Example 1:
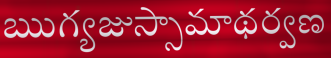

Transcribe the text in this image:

ఋగ్యజుస్సామాథర్వణ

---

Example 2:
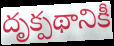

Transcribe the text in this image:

దృక్పథానికీ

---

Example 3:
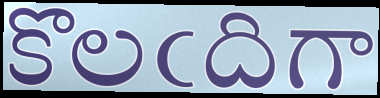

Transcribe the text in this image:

కొలఁదిగా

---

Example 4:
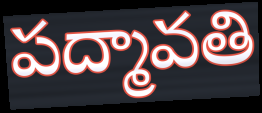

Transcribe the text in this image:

పద్మావతి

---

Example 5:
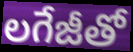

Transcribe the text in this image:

లగేజీతో